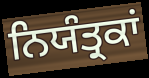
ਨਿਯੰਤ੍ਰਕਾਂ